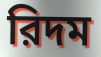
রিদম